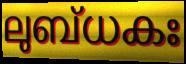
ലുബ്ധകഃ